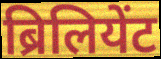
ब्रिलियेंट